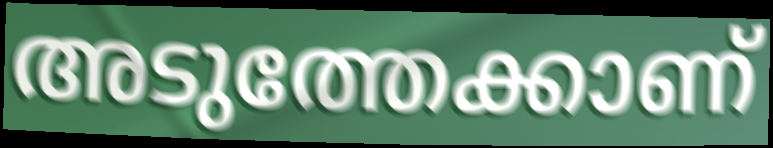
അടുത്തേക്കാണ്